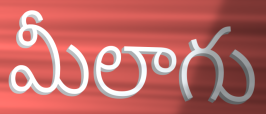
మీలాగు